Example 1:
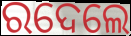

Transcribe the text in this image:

ରଦେଲେ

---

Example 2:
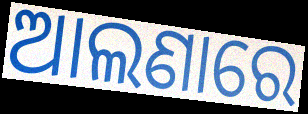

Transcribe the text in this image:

ଆଲଣାରେ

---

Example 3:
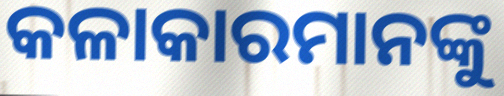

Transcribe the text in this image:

କଳାକାରମାନଙ୍କୁ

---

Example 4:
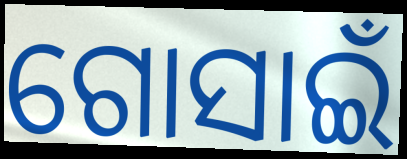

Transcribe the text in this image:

ଗୋସାଇଁ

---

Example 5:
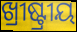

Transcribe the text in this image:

ଖ୍ରୀଷ୍ଟ୍ରୀୟ